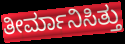
ತೀರ್ಮಾನಿಸಿತ್ತು